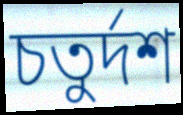
চতুর্দশ